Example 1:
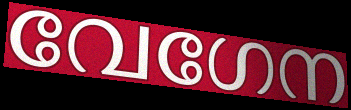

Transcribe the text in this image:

വേഗേന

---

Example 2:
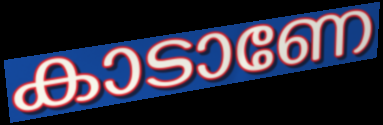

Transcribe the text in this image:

കാടാണേ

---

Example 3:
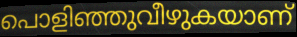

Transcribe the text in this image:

പൊളിഞ്ഞുവീഴുകയാണ്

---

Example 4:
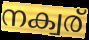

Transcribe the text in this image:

നക്വര്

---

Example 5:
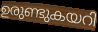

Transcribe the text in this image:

ഉരുണ്ടുകയറി